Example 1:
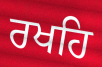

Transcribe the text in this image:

ਰਖਹਿ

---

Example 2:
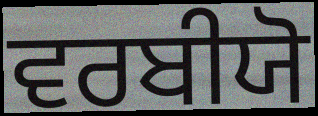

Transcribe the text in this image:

ਵਰਬੀਯੋ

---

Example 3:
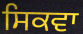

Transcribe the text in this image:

ਸਿਕਵਾ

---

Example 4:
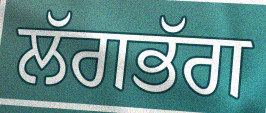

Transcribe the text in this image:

ਲੱਗਭੱਗ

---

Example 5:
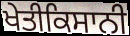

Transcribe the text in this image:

ਖੇਤੀਕਿਸਾਨੀ